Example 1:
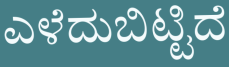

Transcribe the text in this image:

ಎಳೆದುಬಿಟ್ಟಿದೆ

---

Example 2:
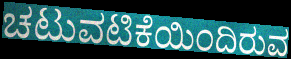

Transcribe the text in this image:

ಚಟುವಟಿಕೆಯಿಂದಿರುವ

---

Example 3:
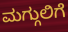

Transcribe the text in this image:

ಮಗ್ಗುಲಿಗೆ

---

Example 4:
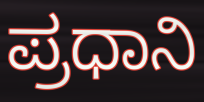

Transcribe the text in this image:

ಪ್ರಧಾನಿ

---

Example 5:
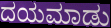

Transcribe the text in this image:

ದಯಮಾಡು